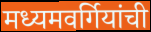
मध्यमवर्गियांची